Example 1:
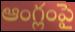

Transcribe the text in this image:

ఆంగ్లంపై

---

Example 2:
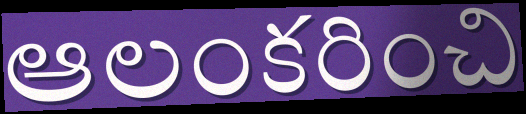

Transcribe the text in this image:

ఆలంకరించి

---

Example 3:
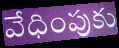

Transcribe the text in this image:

వేధింపుకు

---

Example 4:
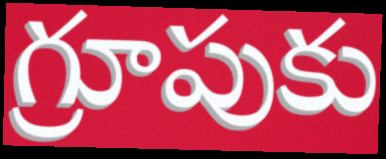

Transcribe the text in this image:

గ్రూపుకు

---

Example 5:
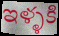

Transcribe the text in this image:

ఇళ్ళకి